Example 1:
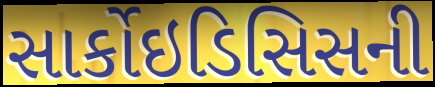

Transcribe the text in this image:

સાર્કોઇડિસિસની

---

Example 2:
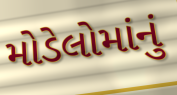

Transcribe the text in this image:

મોડેલોમાંનું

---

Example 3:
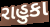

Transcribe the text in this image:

રાહુકા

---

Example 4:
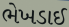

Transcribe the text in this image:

ભેખડાઈ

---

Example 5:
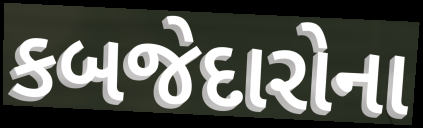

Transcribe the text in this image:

કબજેદારોના